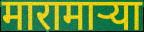
मारामाऱ्या